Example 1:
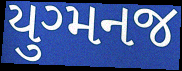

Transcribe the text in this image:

યુગ્મનજ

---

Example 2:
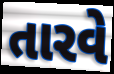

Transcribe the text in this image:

તારવે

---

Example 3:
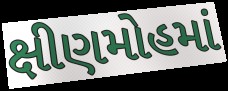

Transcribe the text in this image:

ક્ષીણમોહમાં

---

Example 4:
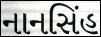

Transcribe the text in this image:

નાનસિંહ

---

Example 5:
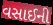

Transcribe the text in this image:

વસાઈની